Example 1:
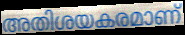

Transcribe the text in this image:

അതിശയകരമാണ്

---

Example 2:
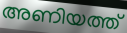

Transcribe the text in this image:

അണിയത്ത്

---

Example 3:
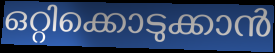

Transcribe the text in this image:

ഒറ്റിക്കൊടുക്കാൻ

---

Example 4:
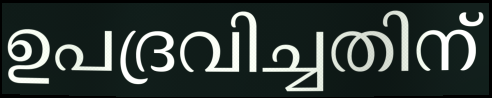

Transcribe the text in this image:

ഉപദ്രവിച്ചതിന്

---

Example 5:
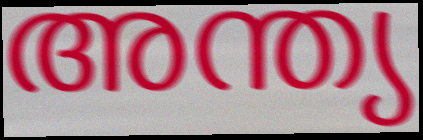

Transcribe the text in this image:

അന്ത്യ